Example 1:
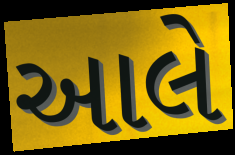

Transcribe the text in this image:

આલે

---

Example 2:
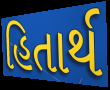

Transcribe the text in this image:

હિતાર્થ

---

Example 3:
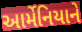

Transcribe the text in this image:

આર્મેનિયાને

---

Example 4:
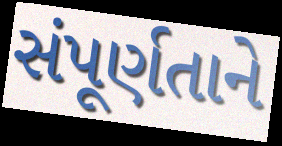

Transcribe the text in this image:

સંપૂર્ણતાને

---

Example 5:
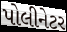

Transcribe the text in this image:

પોલીનેટર